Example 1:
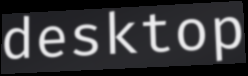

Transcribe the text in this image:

desktop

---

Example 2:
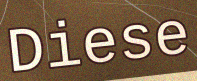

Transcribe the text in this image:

Diese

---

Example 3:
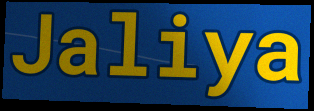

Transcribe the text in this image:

Jaliya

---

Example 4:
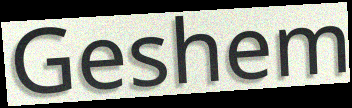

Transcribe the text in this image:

Geshem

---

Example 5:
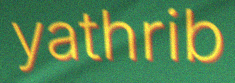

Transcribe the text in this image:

yathrib